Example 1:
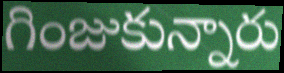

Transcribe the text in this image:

గింజుకున్నారు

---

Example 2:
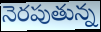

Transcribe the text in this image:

నెరపుతున్న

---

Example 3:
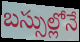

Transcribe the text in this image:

బస్సుల్లోనే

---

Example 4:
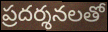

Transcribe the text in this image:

ప్రదర్శనలతో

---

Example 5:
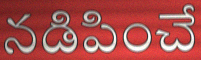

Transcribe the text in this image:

నడిపించే